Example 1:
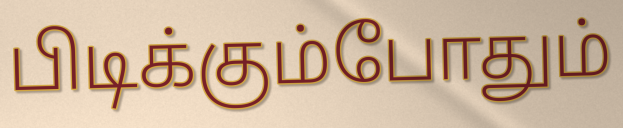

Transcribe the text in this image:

பிடிக்கும்போதும்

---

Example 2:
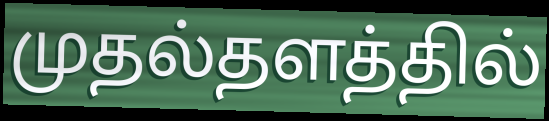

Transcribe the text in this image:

முதல்தளத்தில்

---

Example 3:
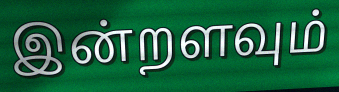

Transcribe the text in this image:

இன்றளவும்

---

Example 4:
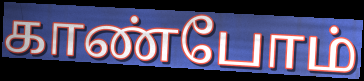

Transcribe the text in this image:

காண்போம்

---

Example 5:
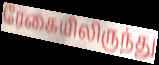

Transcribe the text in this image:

ரேகையிலிருந்து